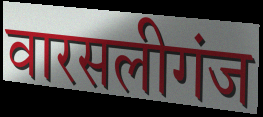
वारसलीगंज